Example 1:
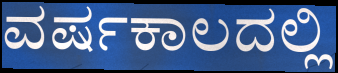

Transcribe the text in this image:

ವರ್ಷಕಾಲದಲ್ಲಿ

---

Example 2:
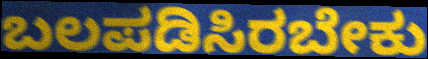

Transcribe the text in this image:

ಬಲಪಡಿಸಿರಬೇಕು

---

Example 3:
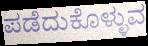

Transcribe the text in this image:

ಪಡೆದುಕೊಳ್ಳುವ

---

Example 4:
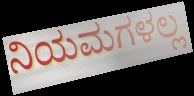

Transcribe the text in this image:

ನಿಯಮಗಳಲ್ಲ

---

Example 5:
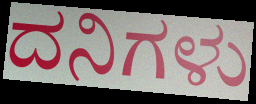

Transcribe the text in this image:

ದನಿಗಳು